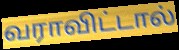
வராவிட்டால்